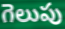
గెలుపు